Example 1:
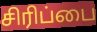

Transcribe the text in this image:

சிரிப்பை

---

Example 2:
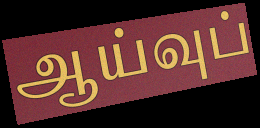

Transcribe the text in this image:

ஆய்வுப்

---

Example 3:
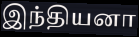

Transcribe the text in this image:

இந்தியனா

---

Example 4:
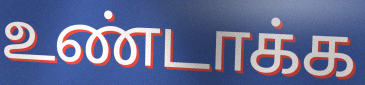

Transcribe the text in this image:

உண்டாக்க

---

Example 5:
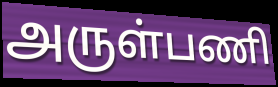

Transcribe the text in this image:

அருள்பணி